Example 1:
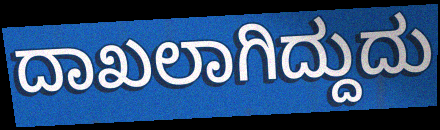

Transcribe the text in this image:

ದಾಖಲಾಗಿದ್ದುದು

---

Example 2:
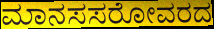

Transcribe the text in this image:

ಮಾನಸಸರೋವರದ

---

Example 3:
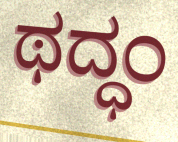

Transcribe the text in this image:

ಥದ್ಧಂ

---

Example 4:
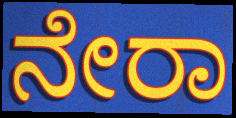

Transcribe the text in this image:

ನೇರಾ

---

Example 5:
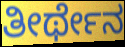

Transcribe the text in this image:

ತೀರ್ಥೇನ